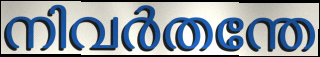
നിവർതന്തേ